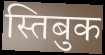
स्तिबुक